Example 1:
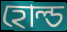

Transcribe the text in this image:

হোল্ড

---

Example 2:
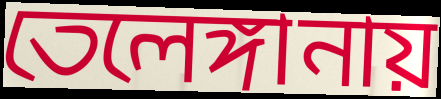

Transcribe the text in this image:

তেলেঙ্গানায়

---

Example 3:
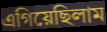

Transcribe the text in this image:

এগিয়েছিলাম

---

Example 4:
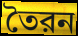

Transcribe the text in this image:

তৈরন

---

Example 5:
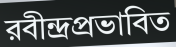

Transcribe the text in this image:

রবীন্দ্রপ্রভাবিত